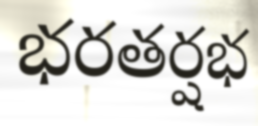
భరతర్షభ